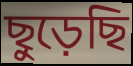
ছুড়েছি